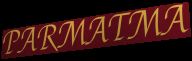
PARMATMA